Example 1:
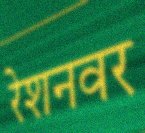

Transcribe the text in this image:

रेशनवर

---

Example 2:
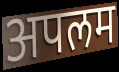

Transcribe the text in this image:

अपलम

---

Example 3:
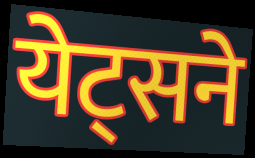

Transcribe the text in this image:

येट्सने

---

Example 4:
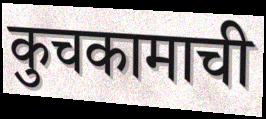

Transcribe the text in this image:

कुचकामाची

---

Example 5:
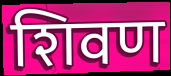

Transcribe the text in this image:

शिवण